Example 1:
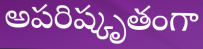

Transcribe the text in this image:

అపరిష్కృతంగా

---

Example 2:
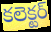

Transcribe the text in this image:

కలెక్టర్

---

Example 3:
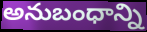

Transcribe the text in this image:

అనుబంధాన్ని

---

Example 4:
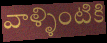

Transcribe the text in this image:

వాళ్ళింటికి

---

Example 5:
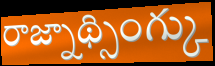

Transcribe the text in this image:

రాజ్నాథ్సింగ్కు